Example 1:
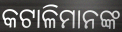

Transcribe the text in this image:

କଟାଳିମାନଙ୍କ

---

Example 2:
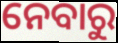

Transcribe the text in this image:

ନେବାରୁ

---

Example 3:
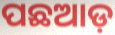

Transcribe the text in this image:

ପଛଆଡ଼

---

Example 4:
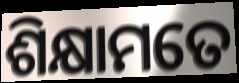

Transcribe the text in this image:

ଶିକ୍ଷାମତେ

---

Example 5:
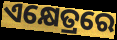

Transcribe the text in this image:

ଏକ୍ଷେତ୍ରରେ